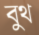
বুথ